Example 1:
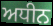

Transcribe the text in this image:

ਅਧੀਨ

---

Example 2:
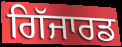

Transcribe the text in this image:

ਗਿੱਜਾਰਡ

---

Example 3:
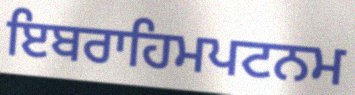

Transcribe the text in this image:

ਇਬਰਾਹਿਮਪਟਨਮ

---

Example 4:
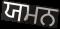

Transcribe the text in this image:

ਯਮਨ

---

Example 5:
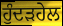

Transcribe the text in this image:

ਹੁੰਦੜਹੇਲ